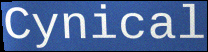
Cynical